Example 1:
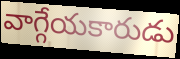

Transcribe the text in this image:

వాగ్గేయకారుడు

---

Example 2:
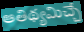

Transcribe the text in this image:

ఆతిథ్యమిచ్చే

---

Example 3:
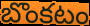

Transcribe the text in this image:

బొంకటం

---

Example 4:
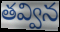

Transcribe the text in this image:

తవ్విన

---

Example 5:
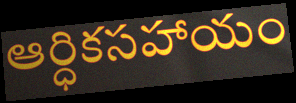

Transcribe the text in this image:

ఆర్ధికసహాయం